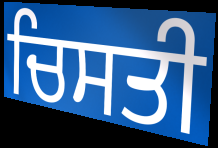
ਚਿਸਤੀ